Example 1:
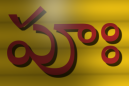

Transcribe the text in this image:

పూః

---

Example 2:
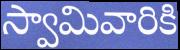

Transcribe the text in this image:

స్వామివారికి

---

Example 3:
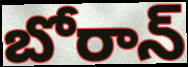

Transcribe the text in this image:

బోరాన్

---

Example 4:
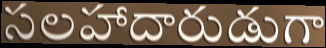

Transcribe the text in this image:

సలహాదారుడుగా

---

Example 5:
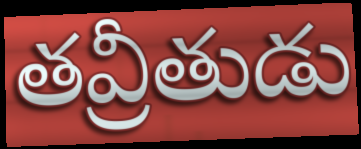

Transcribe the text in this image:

తవ్రీతుడు